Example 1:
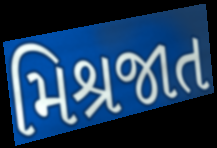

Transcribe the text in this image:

મિશ્રજાત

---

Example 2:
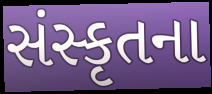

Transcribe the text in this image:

સંસ્‍કૃતના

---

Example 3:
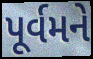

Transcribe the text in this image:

પૂર્વમને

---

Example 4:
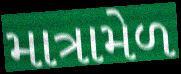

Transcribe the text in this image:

માત્રામેળ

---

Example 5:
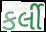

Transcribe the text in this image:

કર્લી